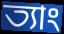
ত্যাং